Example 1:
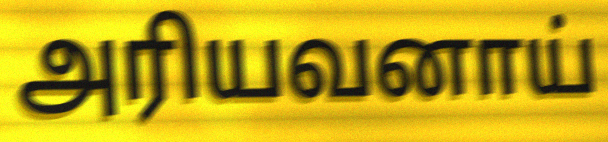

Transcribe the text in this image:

அரியவனாய்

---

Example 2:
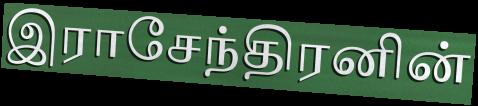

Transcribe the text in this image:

இராசேந்திரனின்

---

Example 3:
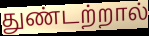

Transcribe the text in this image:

துண்டற்றால்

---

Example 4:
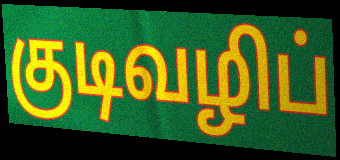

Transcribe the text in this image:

குடிவழிப்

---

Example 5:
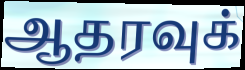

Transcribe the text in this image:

ஆதரவுக்